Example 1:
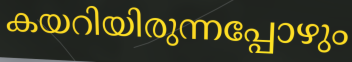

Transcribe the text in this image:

കയറിയിരുന്നപ്പോഴും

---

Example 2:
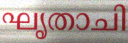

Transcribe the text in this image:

ഘൃതാചി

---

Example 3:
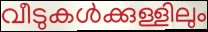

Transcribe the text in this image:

വീടുകൾക്കുള്ളിലും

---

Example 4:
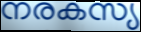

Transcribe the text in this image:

നരകസ്യ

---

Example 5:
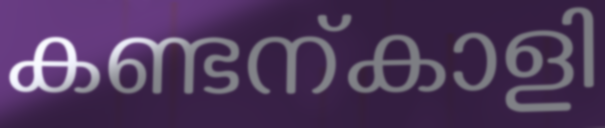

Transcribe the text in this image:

കണ്ടന്കാളി